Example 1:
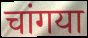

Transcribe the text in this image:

चांगया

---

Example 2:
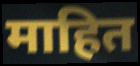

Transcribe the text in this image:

माहित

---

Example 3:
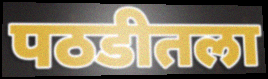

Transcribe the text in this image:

पठडीतला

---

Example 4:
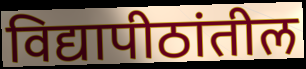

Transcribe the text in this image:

विद्यापीठांतील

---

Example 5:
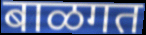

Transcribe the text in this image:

बाळगत